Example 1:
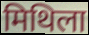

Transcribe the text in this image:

मिथिला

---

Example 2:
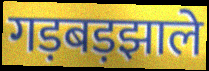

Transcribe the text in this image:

गड़बड़झाले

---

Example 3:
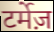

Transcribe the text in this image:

टर्मेज़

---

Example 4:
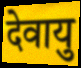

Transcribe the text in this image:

देवायु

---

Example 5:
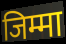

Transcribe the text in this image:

जिम्‍मा